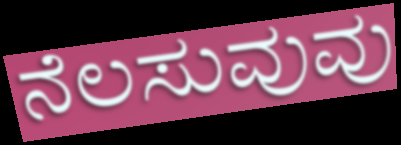
ನೆಲಸುವುವು